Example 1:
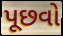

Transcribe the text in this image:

પૂછવો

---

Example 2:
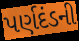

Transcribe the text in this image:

પર્ણદંડની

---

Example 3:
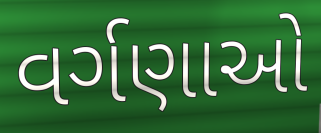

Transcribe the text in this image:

વર્ગણાઓ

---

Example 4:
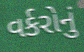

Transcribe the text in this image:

વર્કરોનું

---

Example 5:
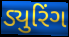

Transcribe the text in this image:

ડ્યુરિંગ